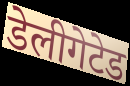
डेलीगेटेड